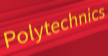
Polytechnics